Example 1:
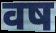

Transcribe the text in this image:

वष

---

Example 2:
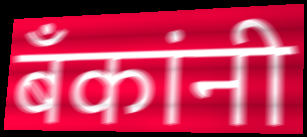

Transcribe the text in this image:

बॅंकांनी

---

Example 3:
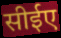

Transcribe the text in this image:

सीईए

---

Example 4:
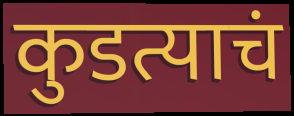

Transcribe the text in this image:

कुडत्याचं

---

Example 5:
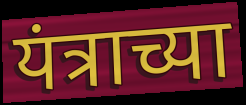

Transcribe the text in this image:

यंत्राच्या